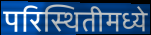
परिस्थितीमध्ये